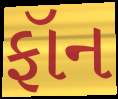
ફૉન